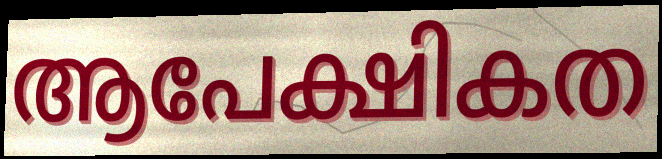
ആപേക്ഷികത